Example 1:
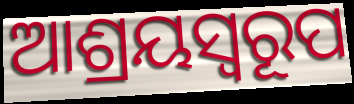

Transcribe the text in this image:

ଆଶ୍ରୟସ୍ୱରୂପ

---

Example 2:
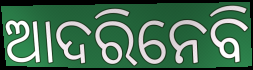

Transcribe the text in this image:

ଆଦରିନେବି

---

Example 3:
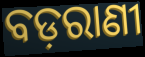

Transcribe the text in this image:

ବଡ଼ରାଣୀ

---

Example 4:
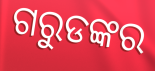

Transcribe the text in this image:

ଗରୁଡଙ୍କର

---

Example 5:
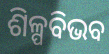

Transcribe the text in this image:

ଶିଳ୍ପବିଭବ